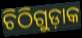
ଚିଠିଗୁଡ଼ାକ